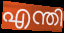
എന്തി